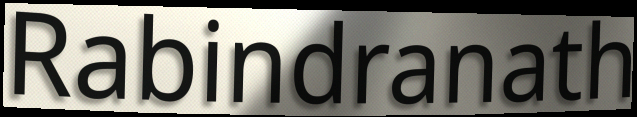
Rabindranath